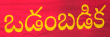
ఒడంబడిక